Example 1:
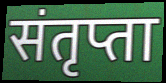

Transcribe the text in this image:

संतृप्ता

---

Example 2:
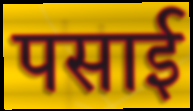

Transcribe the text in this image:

पसाई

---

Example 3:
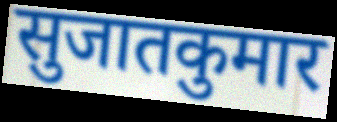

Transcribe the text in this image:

सुजातकुमार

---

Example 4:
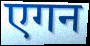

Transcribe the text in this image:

एगन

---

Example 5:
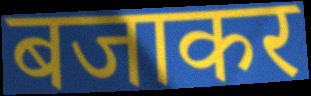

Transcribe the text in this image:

बजाकर